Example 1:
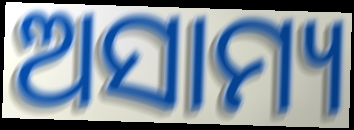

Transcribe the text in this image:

ଅସାମ୍ୟ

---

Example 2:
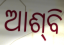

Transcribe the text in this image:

ଆଶ୍‍ବି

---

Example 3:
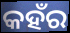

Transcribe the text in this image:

କହଁର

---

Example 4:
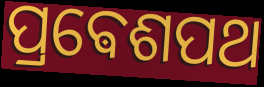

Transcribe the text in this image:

ପ୍ରଵେଶପଥ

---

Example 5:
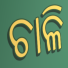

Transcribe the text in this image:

ଚାଳି